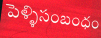
పెళ్ళిసంబంధం